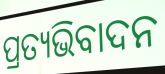
ପ୍ରତ୍ୟଭିବାଦନ